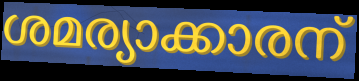
ശമര്യാക്കാരന്